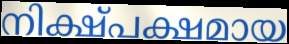
നിക്ഷ്പക്ഷമായ